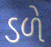
ડળે